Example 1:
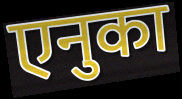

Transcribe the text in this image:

एनुका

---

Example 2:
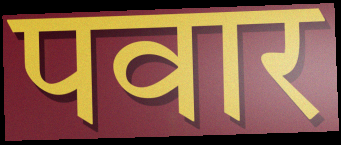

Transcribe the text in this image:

पवार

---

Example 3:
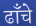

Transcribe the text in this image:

ढाँचे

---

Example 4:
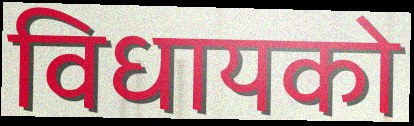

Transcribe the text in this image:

विधायको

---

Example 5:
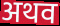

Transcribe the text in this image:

अथव